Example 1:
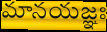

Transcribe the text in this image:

మానయజ్ఞః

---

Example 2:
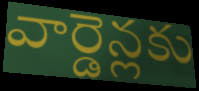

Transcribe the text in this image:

వార్డెన్లకు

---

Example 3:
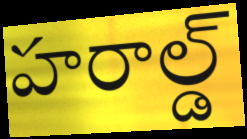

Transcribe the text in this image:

హరాల్డ్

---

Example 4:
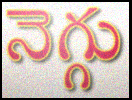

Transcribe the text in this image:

నెగ్గు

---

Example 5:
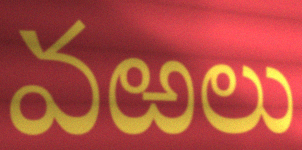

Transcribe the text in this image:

వఱలు